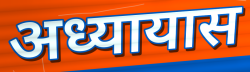
अध्यायास